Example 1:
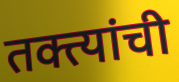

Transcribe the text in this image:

तक्त्यांची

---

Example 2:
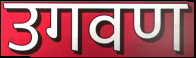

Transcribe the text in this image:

उगवण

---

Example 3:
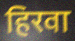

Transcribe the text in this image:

हिरवा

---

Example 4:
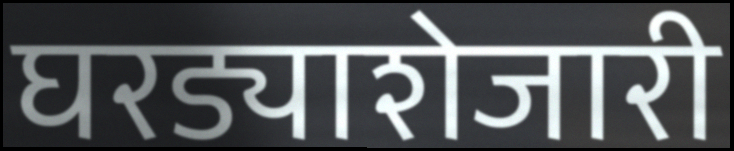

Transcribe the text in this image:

घरड्याशेजारी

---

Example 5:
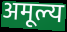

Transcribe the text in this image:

अमूल्य